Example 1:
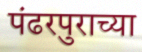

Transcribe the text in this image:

पंढरपुराच्या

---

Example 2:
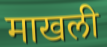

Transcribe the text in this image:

माखली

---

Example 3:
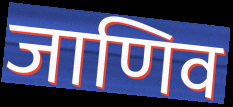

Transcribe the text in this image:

जाणिव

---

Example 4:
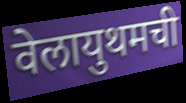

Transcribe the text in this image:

वेलायुथमची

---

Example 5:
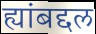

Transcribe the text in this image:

ह्यांबद्दल